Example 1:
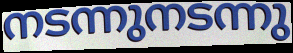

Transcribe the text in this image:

നടന്നുനടന്നു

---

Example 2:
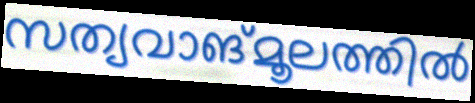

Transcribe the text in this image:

സത്യവാങ്മൂലത്തിൽ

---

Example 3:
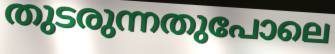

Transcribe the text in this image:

തുടരുന്നതുപോലെ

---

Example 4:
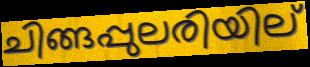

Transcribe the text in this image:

ചിങ്ങപ്പുലരിയില്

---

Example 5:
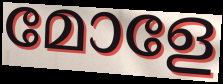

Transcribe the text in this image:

മോളേ